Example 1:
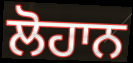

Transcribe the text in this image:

ਲੋਹਾਨ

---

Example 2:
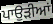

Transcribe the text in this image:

ਪਾਉੜੀਆਂ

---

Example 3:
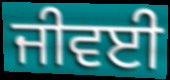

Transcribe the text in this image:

ਜੀਵਈ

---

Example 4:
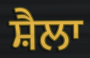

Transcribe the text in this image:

ਸ਼ੈਲਾ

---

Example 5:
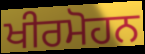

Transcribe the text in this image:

ਖੀਰਮੋਹਨ